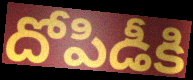
దోపిడీకి